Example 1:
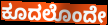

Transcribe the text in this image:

ಕೂದಲೊಂದೇ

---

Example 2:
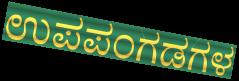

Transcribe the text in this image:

ಉಪಪಂಗಡಗಳ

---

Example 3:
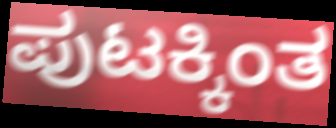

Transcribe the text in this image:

ಪುಟಕ್ಕಿಂತ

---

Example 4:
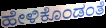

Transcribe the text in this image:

ಹೇಳಿಕೊಂಡಂತೆ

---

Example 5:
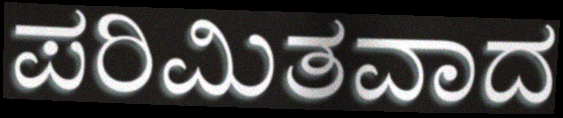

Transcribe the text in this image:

ಪರಿಮಿತವಾದ